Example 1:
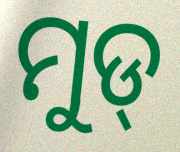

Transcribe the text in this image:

ମୁଡ୍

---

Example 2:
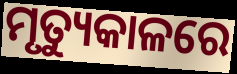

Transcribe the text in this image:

ମୃତ୍ୟୁକାଳରେ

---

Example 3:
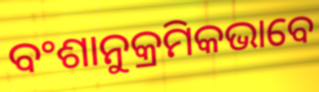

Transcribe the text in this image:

ବଂଶାନୁକ୍ରମିକଭାବେ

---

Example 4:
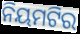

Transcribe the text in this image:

ନିୟମଟିର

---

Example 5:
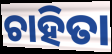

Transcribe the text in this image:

ଚାହିତା